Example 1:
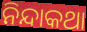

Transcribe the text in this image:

ନିନ୍ଦାକଥା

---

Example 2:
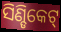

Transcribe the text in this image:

ସିଣ୍ଡିକେଟ୍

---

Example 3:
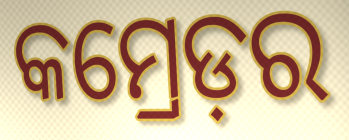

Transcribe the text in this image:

କମ୍ରେଡ଼ର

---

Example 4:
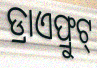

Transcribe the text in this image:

ଡ୍ରାଏଫ୍ରୁଟ୍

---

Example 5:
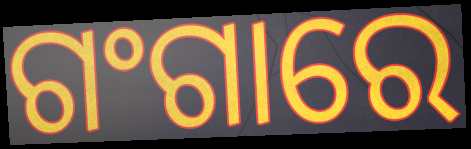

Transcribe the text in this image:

ଗଂଗାରେ